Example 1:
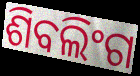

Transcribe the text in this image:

ଶିବଲିଂଗ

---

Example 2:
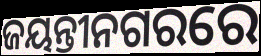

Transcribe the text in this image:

ଜୟନ୍ତୀନଗରରେ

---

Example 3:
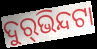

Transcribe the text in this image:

ଦୁର୍‌ଭିନ୍ଦଟା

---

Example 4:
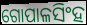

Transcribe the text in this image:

ଗୋପାଳସିଂହ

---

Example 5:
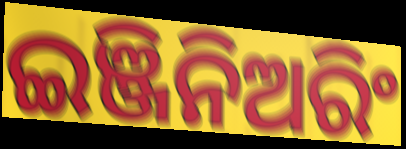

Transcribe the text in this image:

ଇଞ୍ଜିନିଅରିଂ